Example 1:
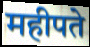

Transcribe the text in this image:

महीपते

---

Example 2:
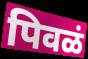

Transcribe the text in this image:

पिवळं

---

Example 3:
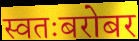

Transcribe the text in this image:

स्वतःबरोबर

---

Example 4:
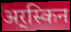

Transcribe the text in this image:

अर्स्किन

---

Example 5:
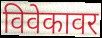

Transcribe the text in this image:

विवेकावर